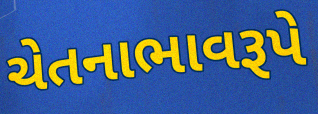
ચેતનાભાવરૂપે